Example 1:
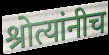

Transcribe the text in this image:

श्रोत्यांनीच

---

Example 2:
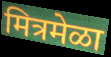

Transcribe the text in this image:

मित्रमेळा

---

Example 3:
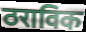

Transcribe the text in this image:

ठराविक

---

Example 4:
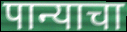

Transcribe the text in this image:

पान्याचा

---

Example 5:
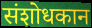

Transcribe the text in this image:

संशोधकान